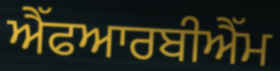
ਐੱਫਆਰਬੀਐੱਮ